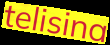
telisina